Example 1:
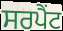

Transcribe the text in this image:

ਸਰਪੈਂਟ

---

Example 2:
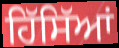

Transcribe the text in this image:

ਹਿੱਸਿੱਆਂ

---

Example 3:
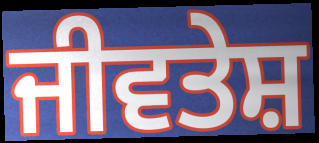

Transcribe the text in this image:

ਜੀਵਤੇਸ਼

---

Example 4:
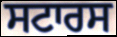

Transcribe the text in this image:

ਸਟਾਰਸ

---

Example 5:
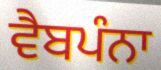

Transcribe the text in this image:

ਵੈਬਪੰਨਾ